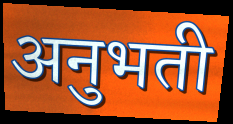
अनुभती